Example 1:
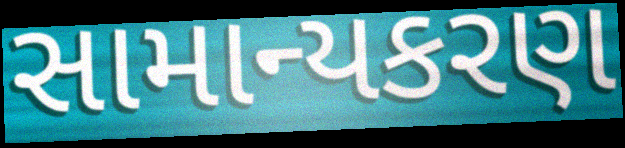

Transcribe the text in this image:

સામાન્યકરણ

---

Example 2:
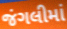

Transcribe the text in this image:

જંગલીમાં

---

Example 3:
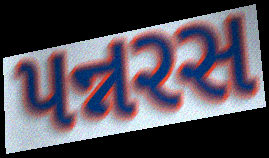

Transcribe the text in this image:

પન્નરસ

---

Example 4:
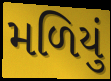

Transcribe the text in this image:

મળિયું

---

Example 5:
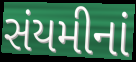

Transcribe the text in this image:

સંયમીનાં